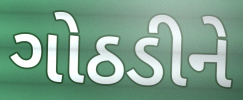
ગોઠડીને